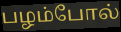
பழம்போல்